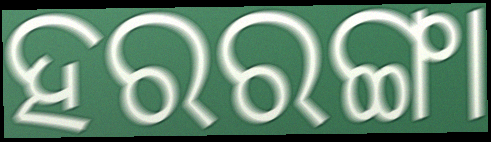
ହରରଙ୍ଗା